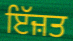
ਇੱਜ਼ਤ